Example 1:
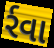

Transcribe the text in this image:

ર્રવા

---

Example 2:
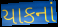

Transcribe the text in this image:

યાકનાં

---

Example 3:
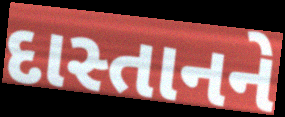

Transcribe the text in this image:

દાસ્તાનને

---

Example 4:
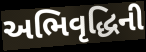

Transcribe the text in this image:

અભિવૃદ્ધિની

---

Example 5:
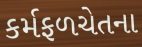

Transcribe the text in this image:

કર્મફળચેતના